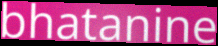
bhatanine